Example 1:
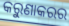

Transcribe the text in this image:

କରୁଣାକରର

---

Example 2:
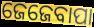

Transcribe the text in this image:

ଜେଜେବାପା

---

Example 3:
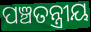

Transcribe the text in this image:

ପଞ୍ଚତନ୍ତ୍ରୀୟ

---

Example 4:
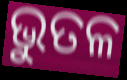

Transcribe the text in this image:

ଭୁତଳ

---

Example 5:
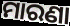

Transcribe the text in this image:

ମାରଣା